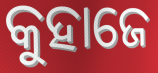
କୁହାଜେ